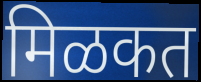
मिळकत